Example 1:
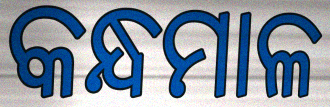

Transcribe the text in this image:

କନ୍ଧମାଳ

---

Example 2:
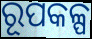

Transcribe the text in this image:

ରୂପକଳ୍ପ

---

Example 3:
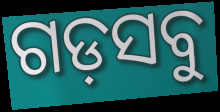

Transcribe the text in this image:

ଗଡ଼ସବୁ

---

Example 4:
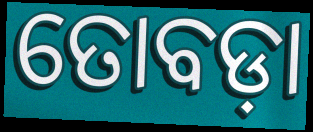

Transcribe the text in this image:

ତୋବଡ଼ା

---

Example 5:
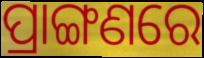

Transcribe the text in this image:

ପ୍ରାଙ୍ଗଣରେ